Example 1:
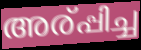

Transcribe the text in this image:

അര്പ്പിച്ച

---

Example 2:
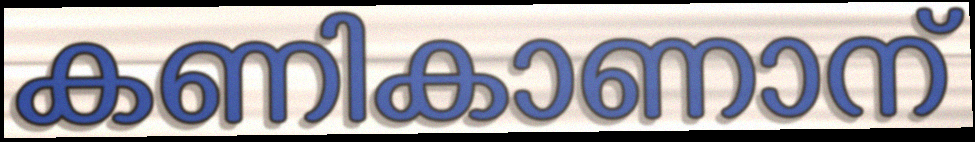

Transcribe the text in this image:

കണികാണാന്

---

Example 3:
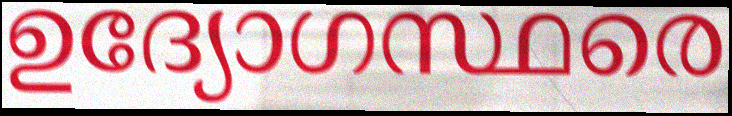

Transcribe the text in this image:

ഉദ്യോഗസ്ഥരെ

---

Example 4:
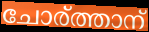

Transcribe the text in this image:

ചോര്ത്താന്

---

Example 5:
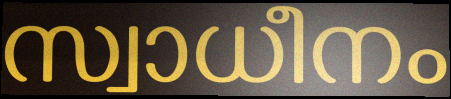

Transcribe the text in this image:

സ്വാധീനം